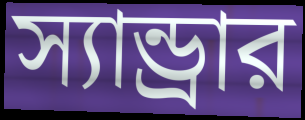
স্যান্ড্রার